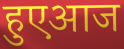
हुएआज